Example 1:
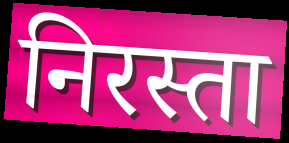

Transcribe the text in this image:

निरस्ता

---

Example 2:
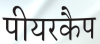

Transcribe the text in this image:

पीयरकैप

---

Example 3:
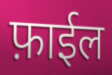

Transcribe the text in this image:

फ़ाईल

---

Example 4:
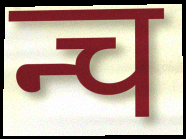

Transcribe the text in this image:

न्च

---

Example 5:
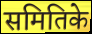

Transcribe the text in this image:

समितिके